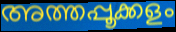
അത്തപ്പൂക്കളം